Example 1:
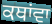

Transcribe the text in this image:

ਕਥਾਂਵਾ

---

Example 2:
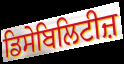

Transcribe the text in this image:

ਡਿਸੇਬਿਲਿਟੀਜ਼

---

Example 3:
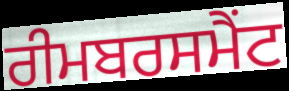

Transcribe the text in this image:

ਰੀਮਬਰਸਮੈਂਟ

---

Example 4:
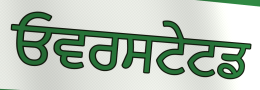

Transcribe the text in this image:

ਓਵਰਸਟੇਟਡ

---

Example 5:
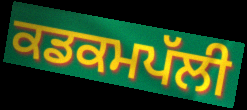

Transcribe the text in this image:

ਕਡਕਮਪੱਲੀ